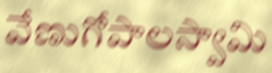
వేణుగోపాలస్వామి